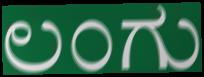
ಲಂಗು